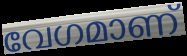
വേഗമാണ്